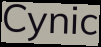
Cynic